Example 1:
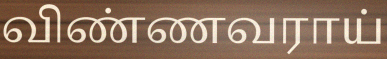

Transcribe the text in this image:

விண்ணவராய்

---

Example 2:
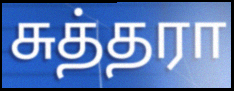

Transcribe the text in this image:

சுத்தரா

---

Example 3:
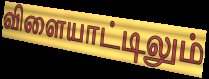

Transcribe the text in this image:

விளையாட்டிலும்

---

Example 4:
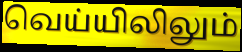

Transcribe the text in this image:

வெய்யிலிலும்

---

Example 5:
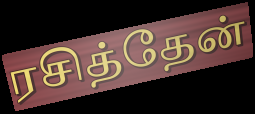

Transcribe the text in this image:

ரசித்தேன்